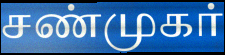
சண்முகர்